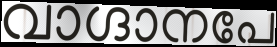
വാഗ്ദാനപേ